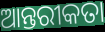
ଆନ୍ତରୀକତା